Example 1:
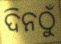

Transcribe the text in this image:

ଦିନଠୁଁ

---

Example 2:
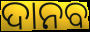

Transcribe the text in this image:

ଦାନବ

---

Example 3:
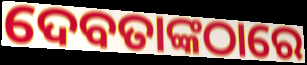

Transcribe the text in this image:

ଦେବତାଙ୍କଠାରେ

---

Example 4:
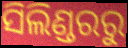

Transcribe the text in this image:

ସିଲିଣ୍ଡରରୁ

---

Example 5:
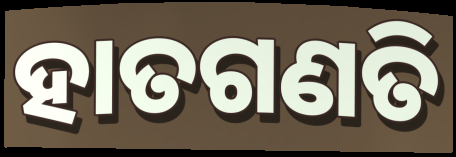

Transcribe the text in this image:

ହାତଗଣତି